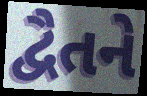
દ્વૈતને